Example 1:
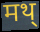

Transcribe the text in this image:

मथ्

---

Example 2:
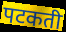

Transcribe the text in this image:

पटकती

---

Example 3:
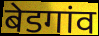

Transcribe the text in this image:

बेडगांव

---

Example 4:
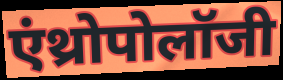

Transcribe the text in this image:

एंथ्रोपोलॉजी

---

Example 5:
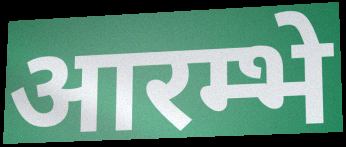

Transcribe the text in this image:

आरम्भे